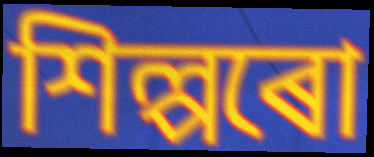
শিল্পৰো